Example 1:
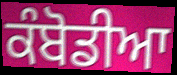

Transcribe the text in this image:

ਕੰਬੋਡੀਆ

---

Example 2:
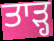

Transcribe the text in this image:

ਤਾੜ੍ਹ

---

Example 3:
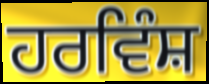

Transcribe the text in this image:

ਹਰਵਿੰਸ਼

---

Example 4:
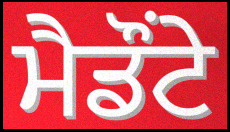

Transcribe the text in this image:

ਮੈਡੌਂਟੇ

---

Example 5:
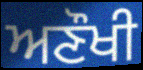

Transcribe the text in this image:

ਅਣੌਖੀ